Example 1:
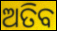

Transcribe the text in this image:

ଅତିବ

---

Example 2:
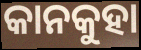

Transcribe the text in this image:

କାନକୁହା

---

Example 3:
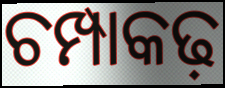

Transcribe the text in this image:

ଚମ୍ପାକଢ଼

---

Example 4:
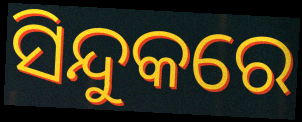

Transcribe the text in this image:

ସିନ୍ଦୁକରେ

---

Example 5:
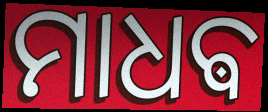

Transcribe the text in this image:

ମାଧଵ